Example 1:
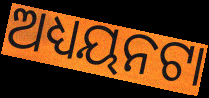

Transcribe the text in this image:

ଅଧ୍ୟୟନଟା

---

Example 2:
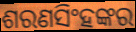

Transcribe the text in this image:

ଶରଣସିଂହଙ୍କର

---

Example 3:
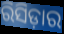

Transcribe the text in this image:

ରିସିଡ଼ାର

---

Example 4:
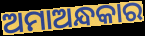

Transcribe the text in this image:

ଅମାଅନ୍ଧକାର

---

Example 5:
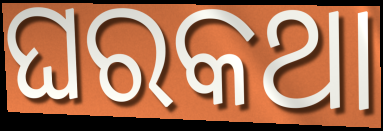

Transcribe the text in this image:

ଘରକଥା